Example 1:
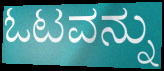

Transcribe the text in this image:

ಓಟವನ್ನು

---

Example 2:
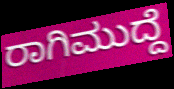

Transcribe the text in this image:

ರಾಗಿಮುದ್ದೆ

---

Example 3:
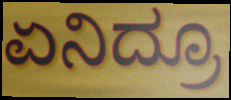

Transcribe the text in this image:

ಏನಿದ್ರೂ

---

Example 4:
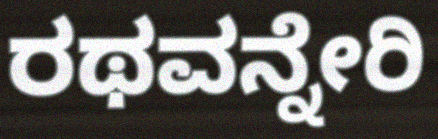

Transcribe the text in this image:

ರಥವನ್ನೇರಿ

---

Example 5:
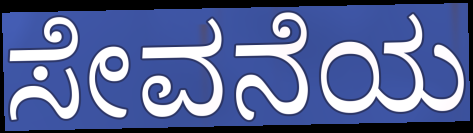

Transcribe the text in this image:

ಸೇವನೆಯ